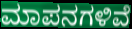
ಮಾಪನಗಳಿವೆ